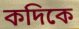
কদিকে